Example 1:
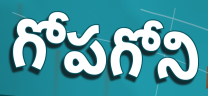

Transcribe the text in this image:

గోపగోని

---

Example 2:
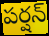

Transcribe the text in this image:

పర్షన్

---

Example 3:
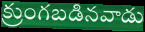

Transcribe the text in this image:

క్రుంగబడినవాడు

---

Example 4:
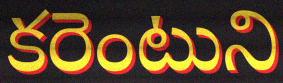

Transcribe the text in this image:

కరెంటుని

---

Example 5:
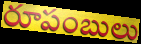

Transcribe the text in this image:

రూపంబులు